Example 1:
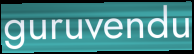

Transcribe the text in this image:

guruvendu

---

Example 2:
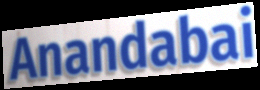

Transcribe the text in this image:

Anandabai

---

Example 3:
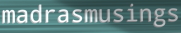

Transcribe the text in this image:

madrasmusings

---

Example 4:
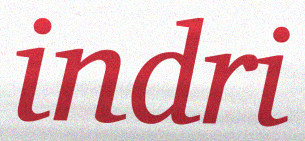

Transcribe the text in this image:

indri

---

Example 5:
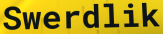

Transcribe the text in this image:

Swerdlik